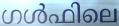
ഗൾഫിലെ